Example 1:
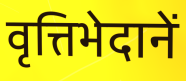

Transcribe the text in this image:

वृत्तिभेदानें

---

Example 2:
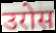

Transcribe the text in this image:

उरोस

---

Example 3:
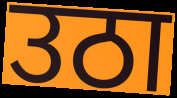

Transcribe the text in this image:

उठा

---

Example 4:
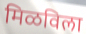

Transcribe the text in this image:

मिळविला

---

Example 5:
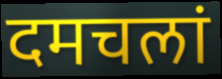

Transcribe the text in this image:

दमचलां